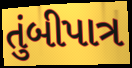
તુંબીપાત્ર